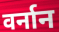
वर्नान